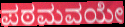
ಪಠಮವಯೇ